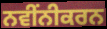
ਨਵੀਂਨੀਕਰਨ